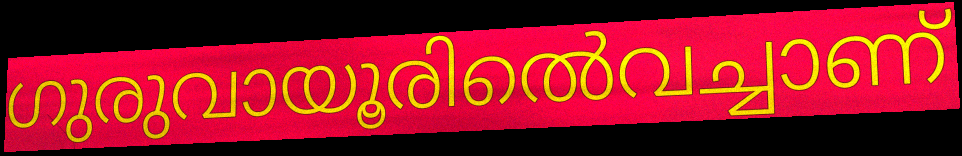
ഗുരുവായൂരിൽെവച്ചാണ്